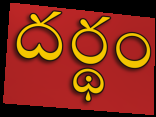
దర్థం